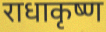
राधाकृष्ण